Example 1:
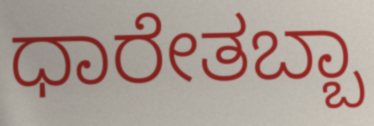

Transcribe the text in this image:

ಧಾರೇತಬ್ಬಾ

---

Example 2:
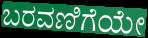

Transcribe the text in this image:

ಬರವಣಿಗೆಯೇ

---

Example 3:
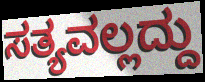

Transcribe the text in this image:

ಸತ್ಯವಲ್ಲದ್ದು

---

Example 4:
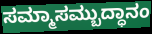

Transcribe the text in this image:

ಸಮ್ಮಾಸಮ್ಬುದ್ಧಾನಂ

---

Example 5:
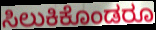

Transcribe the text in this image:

ಸಿಲುಕಿಕೊಂಡರೂ